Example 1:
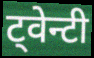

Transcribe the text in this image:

ट्वेन्टी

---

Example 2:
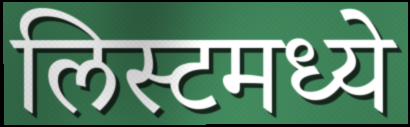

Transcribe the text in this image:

लिस्टमध्ये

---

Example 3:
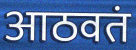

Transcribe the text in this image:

आठवतं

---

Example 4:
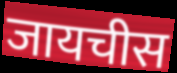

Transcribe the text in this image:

जायचीस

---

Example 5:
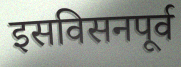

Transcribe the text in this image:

इसविसनपूर्व